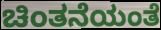
ಚಿಂತನೆಯಂತೆ